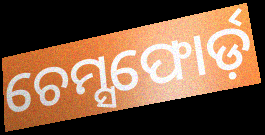
ଚେମ୍ସଫୋର୍ଡ଼